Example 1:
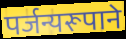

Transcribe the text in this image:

पर्जन्यरूपाने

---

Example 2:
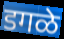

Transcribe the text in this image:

डगळे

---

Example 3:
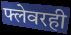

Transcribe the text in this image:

फ्लेवरही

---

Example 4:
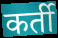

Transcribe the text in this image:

कर्ती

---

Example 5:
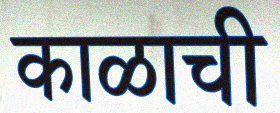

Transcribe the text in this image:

काळाची